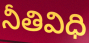
నీతివిధి